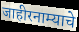
जाहीरनाम्याचे